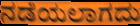
ನಡೆಯಲಾಗದು